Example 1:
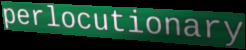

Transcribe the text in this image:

perlocutionary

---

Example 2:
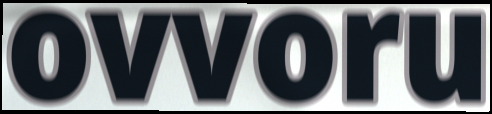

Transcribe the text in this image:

ovvoru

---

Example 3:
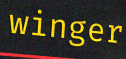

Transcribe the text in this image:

winger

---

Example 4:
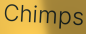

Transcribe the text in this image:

Chimps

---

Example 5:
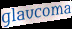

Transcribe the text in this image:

glaucoma